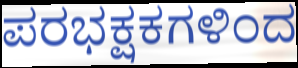
ಪರಭಕ್ಷಕಗಳಿಂದ